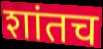
शांतच